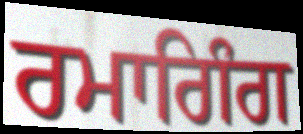
ਰਮਾਗਿੰਗ